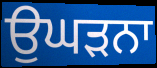
ਉਘੜਨਾ